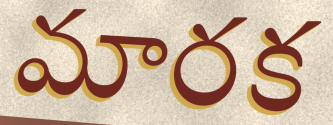
మారక